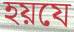
হয়যে